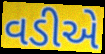
વડીએ